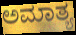
ಅಮಾತ್ಯ